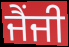
ਜੈਂਜੀ